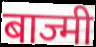
बाज्मी